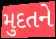
મુદતને